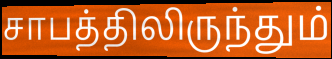
சாபத்திலிருந்தும்